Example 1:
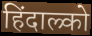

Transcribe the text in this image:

हिंदाल्को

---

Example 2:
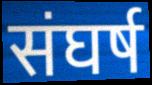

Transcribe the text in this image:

संघर्ष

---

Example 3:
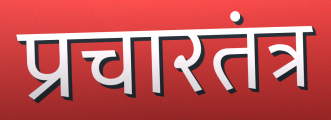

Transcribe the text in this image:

प्रचारतंत्र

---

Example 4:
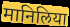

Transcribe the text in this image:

मानिलिया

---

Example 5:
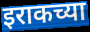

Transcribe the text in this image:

इराकच्या